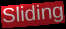
Sliding